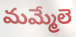
మమ్మేలె